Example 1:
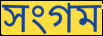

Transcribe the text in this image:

সংগম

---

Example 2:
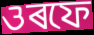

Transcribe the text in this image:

ওৰফে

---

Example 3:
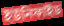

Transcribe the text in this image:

ইউনিফাইড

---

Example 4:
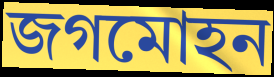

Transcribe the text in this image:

জগমোহন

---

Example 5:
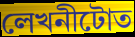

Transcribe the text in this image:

লেখনীটোত